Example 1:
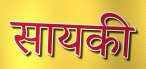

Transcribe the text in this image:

सायकी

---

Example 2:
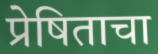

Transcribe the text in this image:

प्रेषिताचा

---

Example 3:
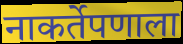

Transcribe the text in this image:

नाकर्तेपणाला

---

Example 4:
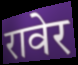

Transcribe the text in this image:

रावेर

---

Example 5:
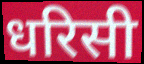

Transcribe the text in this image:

धरिसी